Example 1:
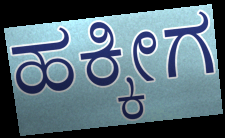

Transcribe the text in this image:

ಹಕ್ಕೀಗ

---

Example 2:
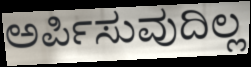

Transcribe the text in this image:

ಅರ್ಪಿಸುವುದಿಲ್ಲ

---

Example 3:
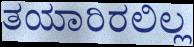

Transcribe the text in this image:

ತಯಾರಿರಲಿಲ್ಲ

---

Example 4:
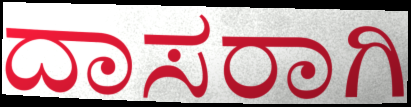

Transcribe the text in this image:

ದಾಸರಾಗಿ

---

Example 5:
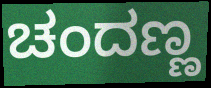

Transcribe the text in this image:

ಚಂದಣ್ಣ